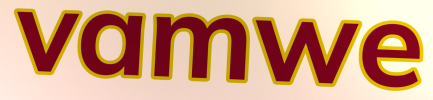
vamwe